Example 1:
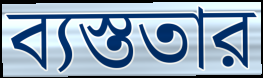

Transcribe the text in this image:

ব্যস্ততার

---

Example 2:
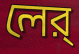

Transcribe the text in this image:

লের্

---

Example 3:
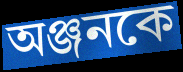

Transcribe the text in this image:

অঞ্জনকে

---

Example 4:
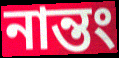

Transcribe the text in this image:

নান্তং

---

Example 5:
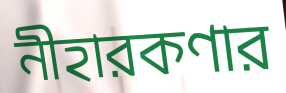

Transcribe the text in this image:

নীহারকণার